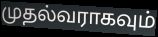
முதல்வராகவும்